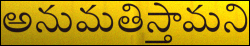
అనుమతిస్తామని